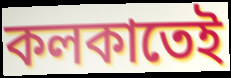
কলকাতেই